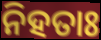
ନିହତାଃ